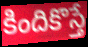
కిందికొస్తే